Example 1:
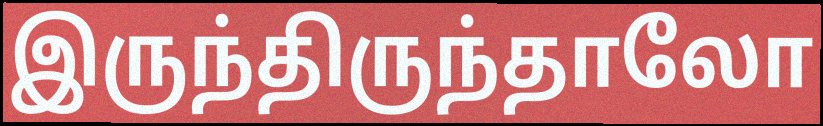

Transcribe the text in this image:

இருந்திருந்தாலோ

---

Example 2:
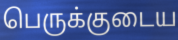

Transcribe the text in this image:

பெருக்குடைய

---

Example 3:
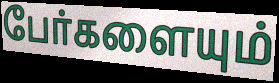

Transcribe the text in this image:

பேர்களையும்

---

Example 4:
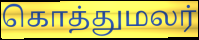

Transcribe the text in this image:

கொத்துமலர்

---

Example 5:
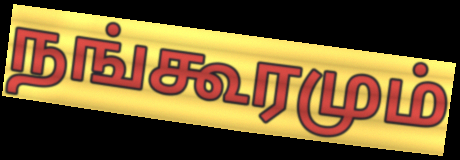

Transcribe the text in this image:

நங்கூரமும்